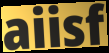
aiisf